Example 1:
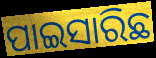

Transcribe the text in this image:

ପାଇସାରିଛ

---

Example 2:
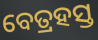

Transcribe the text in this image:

ବେତ୍ରହସ୍ତ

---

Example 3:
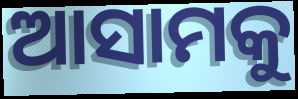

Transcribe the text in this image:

ଆସାମକୁ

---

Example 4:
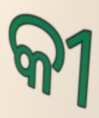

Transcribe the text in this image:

କୀ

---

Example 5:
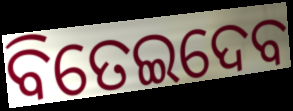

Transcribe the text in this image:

ବିତେଇଦେବ